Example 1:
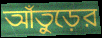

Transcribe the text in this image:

আঁতুড়ের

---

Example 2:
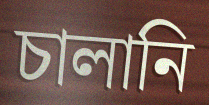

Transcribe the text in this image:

চালানি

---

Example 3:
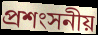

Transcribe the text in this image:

প্রশংসনীয়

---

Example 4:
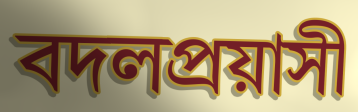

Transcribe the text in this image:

বদলপ্রয়াসী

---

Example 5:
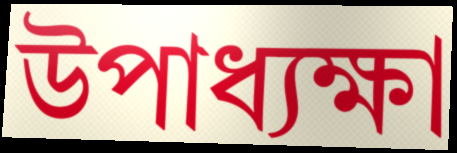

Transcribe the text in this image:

উপাধ্যক্ষা